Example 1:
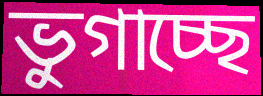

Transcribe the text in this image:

ভুগাচ্ছে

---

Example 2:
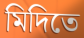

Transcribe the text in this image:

মিদিতে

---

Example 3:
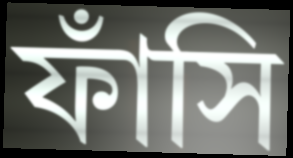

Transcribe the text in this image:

ফাঁসি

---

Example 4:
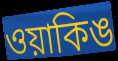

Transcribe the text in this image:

ওয়াকিঙ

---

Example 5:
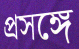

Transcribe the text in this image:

প্রসঙ্গে